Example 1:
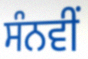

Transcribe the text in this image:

ਸੰਨਵੀਂ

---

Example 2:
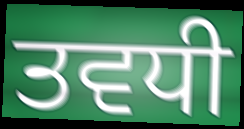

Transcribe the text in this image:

ਤਵਧੀ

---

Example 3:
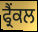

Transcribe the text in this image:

ਫ੍ਰੈਂਕਲ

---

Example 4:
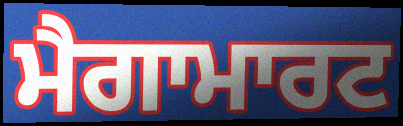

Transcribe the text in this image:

ਮੈਗਾਮਾਰਟ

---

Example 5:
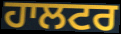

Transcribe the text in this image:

ਹਾਲਟਰ